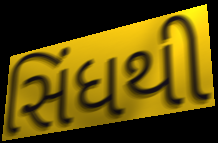
સિંધથી